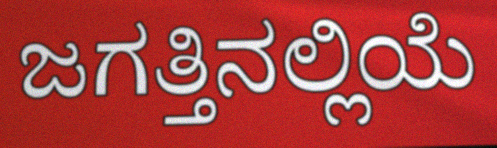
ಜಗತ್ತಿನಲ್ಲಿಯೆ